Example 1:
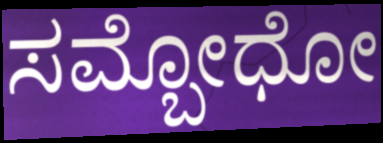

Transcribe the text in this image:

ಸಮ್ಬೋಧೋ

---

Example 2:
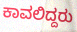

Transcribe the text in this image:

ಕಾವಲಿದ್ದರು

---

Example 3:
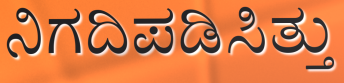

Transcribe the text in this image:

ನಿಗದಿಪಡಿಸಿತ್ತು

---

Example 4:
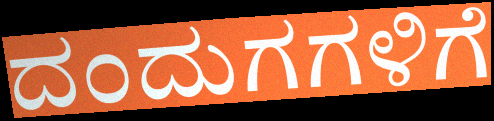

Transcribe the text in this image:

ದಂದುಗಗಳಿಗೆ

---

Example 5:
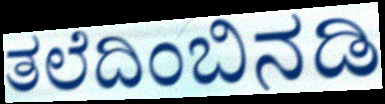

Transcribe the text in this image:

ತಲೆದಿಂಬಿನಡಿ